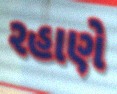
રહાણે